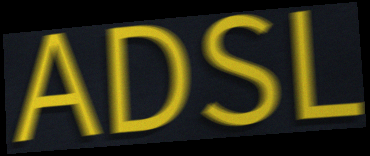
ADSL